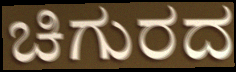
ಚಿಗುರದ